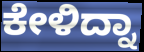
ಕೇಳಿದ್ನಾ